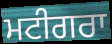
ਮਟੀਗਰਾ